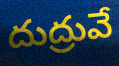
దుద్రువే